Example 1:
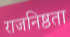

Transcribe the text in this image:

राजनिष्ठता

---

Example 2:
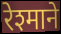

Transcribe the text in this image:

रेश्माने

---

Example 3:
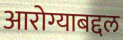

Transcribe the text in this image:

आरोग्याबद्दल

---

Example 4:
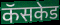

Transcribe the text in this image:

कॅसकेड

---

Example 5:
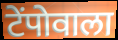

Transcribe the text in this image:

टेंपोवाला